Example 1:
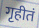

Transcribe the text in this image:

गृहीतं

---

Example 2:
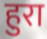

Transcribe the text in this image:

हुरा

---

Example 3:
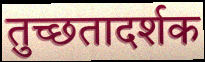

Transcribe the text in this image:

तुच्छतादर्शक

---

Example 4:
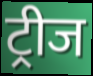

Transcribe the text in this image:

ट्रीज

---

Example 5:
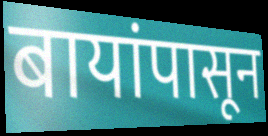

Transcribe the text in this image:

बायांपासून